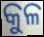
କୁଳ